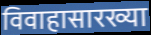
विवाहासारख्या